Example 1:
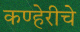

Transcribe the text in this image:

कण्हेरीचे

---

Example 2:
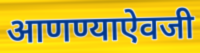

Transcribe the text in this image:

आणण्याऐवजी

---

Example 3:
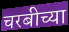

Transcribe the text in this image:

चरबीच्या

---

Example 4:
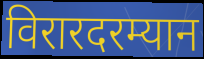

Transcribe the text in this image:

विरारदरम्यान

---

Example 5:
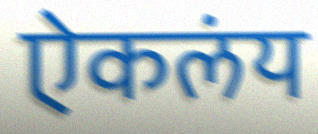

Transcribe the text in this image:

ऐकलंय